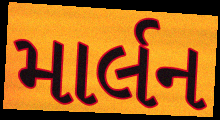
માર્લન